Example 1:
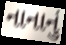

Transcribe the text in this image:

નાનાનું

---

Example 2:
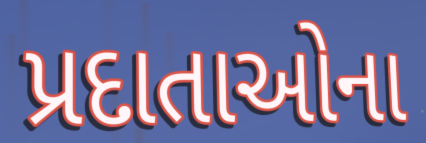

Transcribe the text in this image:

પ્રદાતાઓના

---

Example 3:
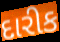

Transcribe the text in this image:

દારીક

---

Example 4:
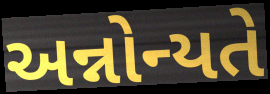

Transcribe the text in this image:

અન્નોન્યતે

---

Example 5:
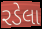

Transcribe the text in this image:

રડેલા